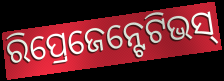
ରିପ୍ରେଜେନ୍ଟେଟିଭସ୍